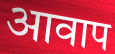
आवाप